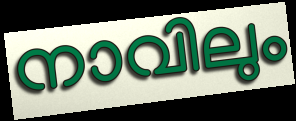
നാവിലും